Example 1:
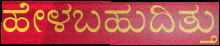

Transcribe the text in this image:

ಹೇಳಬಹುದಿತ್ತು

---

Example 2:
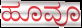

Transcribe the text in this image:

ಹೂವೂ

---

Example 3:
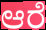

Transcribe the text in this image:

ಆರೆ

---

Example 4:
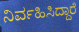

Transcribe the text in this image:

ನಿರ್ವಹಿಸಿದ್ದಾರೆ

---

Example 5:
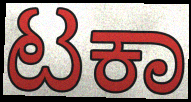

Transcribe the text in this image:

ಟಕಾ